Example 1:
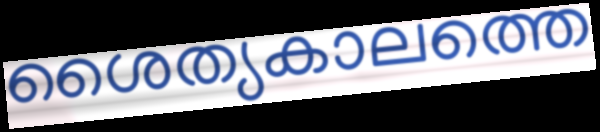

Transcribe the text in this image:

ശൈത്യകാലത്തെ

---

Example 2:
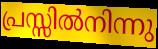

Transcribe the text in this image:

പ്രസ്സിൽനിന്നു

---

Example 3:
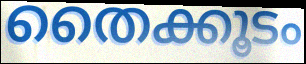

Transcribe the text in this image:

തൈക്കൂടം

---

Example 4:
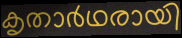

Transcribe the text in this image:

കൃതാർഥരായി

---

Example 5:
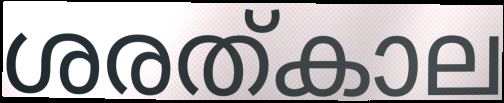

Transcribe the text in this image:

ശരത്കാല